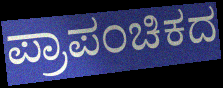
ಪ್ರಾಪಂಚಿಕದ